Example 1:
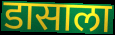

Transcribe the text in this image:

डासाला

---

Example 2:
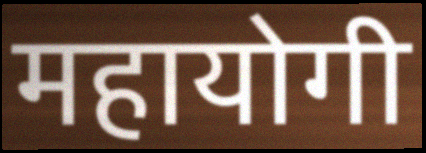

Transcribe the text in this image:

महायोगी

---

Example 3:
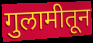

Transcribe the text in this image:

गुलामीतून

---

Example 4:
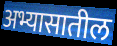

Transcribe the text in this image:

अभ्यासातील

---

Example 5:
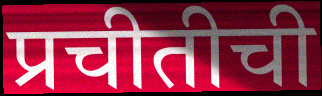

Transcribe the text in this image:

प्रचीतीची